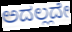
ಅದಲ್ಲದೇ